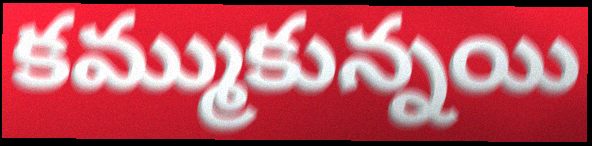
కమ్ముకున్నయి